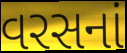
વરસનાં